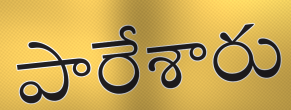
పారేశారు